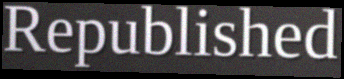
Republished